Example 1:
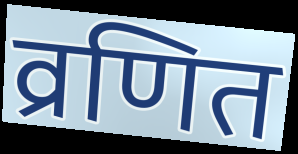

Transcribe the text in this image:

व्रणित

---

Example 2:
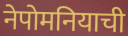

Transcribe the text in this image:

नेपोमनियाची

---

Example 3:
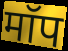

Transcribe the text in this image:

मॉप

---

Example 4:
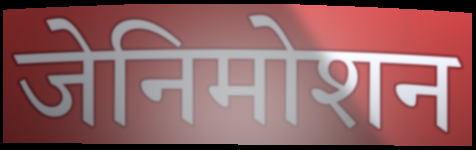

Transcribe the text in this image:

जेनिमोशन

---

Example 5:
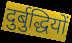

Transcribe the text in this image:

दुर्बुद्धियों